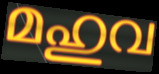
മഹുവ